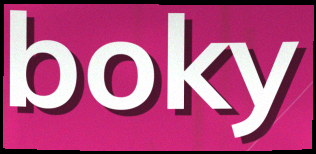
boky